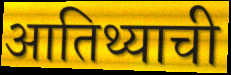
आतिथ्याची